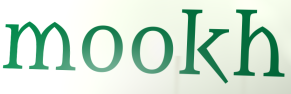
mookh